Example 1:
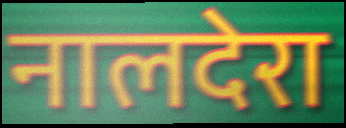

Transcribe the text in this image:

नालदेरा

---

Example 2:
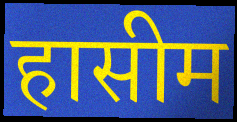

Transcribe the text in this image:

हासीम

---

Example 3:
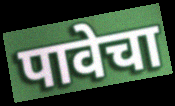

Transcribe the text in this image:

पावेचा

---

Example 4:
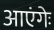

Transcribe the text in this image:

आएंगेः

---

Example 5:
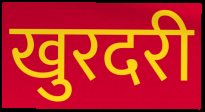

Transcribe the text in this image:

खुरदरी